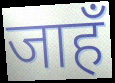
जाहँ